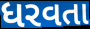
ધરવતા